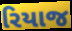
રિયાજ